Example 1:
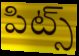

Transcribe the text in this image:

పిట్స్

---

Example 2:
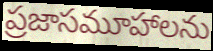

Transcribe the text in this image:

ప్రజాసమూహాలను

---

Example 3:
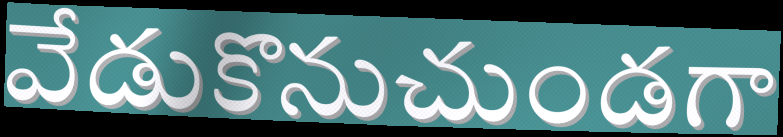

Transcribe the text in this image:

వేడుకొనుచుండగా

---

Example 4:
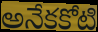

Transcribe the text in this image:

అనేకకోటి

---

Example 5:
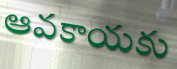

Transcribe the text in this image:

ఆవకాయకు